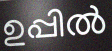
ഉപ്പിൽ